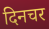
दिनचर